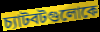
চ্যাটবটগুলোকে